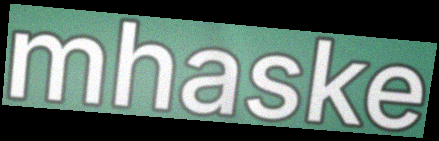
mhaske